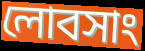
লোবসাং